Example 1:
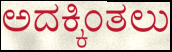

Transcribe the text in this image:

ಅದಕ್ಕಿಂತಲು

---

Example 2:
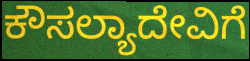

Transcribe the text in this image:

ಕೌಸಲ್ಯಾದೇವಿಗೆ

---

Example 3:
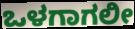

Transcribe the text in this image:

ಒಳಗಾಗಲೀ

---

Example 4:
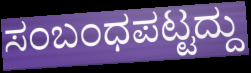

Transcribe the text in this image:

ಸಂಬಂಧಪಟ್ಟದ್ದು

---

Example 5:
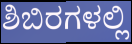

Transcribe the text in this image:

ಶಿಬಿರಗಳಲ್ಲಿ